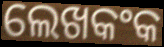
ଲେଖକଂକ